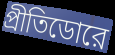
প্রীতিডোরে